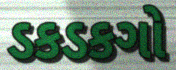
ડકડકગો